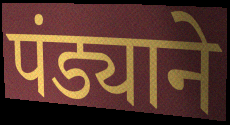
पंड्याने